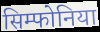
सिम्फोनिया